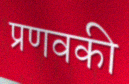
प्रणवकी